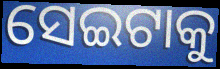
ସେଇଟାକୁ